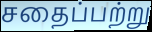
சதைப்பற்று